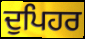
ਦੁਪਿਹਰ